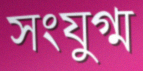
সংযুগ্ম